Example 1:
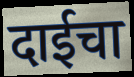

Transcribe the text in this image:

दाईचा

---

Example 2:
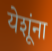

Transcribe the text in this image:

येशूंना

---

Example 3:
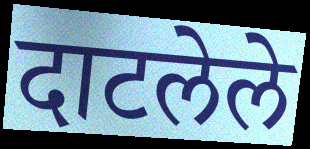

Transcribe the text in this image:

दाटलेले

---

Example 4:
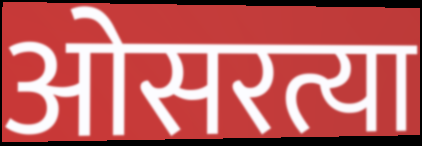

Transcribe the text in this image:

ओसरत्या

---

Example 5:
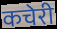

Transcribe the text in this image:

कचेरी